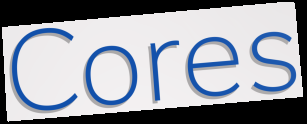
Cores